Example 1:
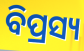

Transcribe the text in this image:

ବିପ୍ରସ୍ୟ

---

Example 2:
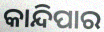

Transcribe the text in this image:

କାନ୍ଦିପାର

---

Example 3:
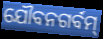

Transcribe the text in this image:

ଯୌବନଗର୍ବମ୍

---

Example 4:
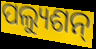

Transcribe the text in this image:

ପଲ୍ୟୁଶନ୍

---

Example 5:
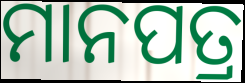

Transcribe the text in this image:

ମାନପତ୍ର